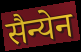
सैन्येन